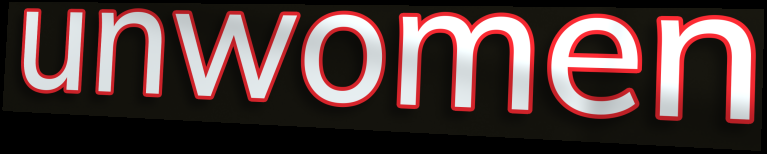
unwomen